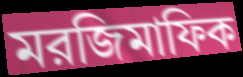
মরজিমাফিক